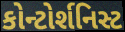
કોન્ટોર્શનિસ્ટ